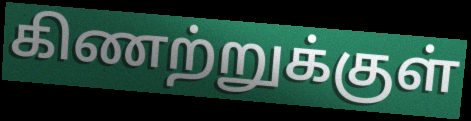
கிணற்றுக்குள்